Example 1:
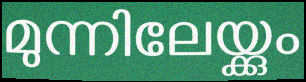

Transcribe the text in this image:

മുന്നിലേയ്ക്കും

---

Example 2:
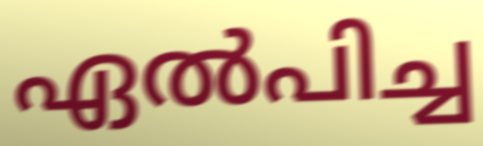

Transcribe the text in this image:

ഏൽപിച്ച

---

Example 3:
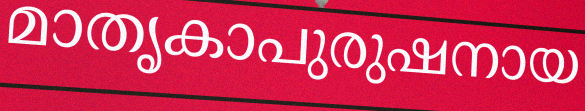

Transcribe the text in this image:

മാതൃകാപുരുഷനായ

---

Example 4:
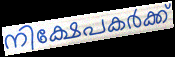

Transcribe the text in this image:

നിക്ഷേപകർക്ക്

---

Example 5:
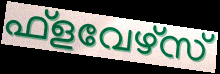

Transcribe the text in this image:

ഫ്ളവേഴ്സ്